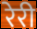
रेरी